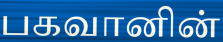
பகவானின்